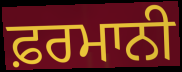
ਫ਼ਰਮਾਨੀ